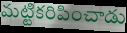
మట్టికరిపించాడు